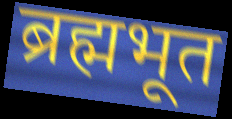
ब्रह्मभूत